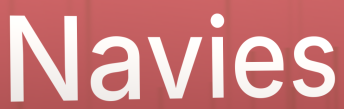
Navies